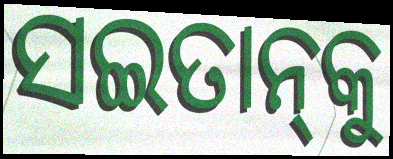
ସଇତାନ୍‌କୁ